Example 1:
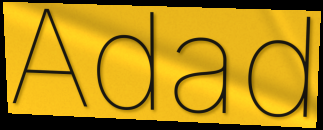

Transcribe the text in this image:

Adad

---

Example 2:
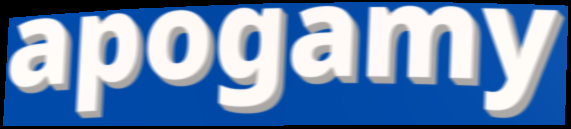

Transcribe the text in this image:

apogamy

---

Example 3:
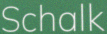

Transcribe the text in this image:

Schalk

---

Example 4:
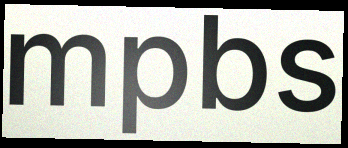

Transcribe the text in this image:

mpbs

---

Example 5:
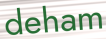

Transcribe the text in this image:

deham